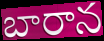
బారాన